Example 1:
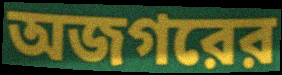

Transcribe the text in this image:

অজগরের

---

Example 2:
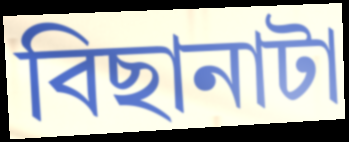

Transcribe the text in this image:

বিছানাটা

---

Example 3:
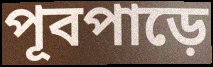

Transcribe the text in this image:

পূবপাড়ে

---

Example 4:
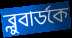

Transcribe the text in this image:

ব্লুবার্ডকে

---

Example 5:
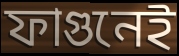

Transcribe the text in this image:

ফাগুনেই